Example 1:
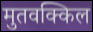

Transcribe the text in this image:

मुतवक्किल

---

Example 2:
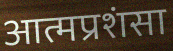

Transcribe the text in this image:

आत्मप्रशंसा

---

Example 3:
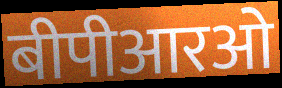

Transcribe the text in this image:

बीपीआरओ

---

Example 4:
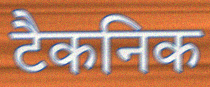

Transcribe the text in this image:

टैकनिक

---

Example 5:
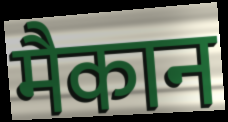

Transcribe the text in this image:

मैकान